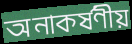
অনাকর্ষণীয়